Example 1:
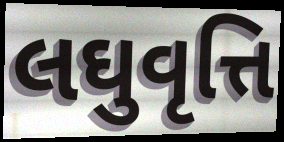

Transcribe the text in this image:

લઘુવૃત્તિ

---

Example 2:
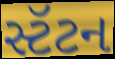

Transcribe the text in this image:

સ્ટૅટન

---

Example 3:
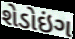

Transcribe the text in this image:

શેડોઇંગ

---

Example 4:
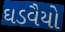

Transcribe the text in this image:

ઘડવૈયો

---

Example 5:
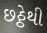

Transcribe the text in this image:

છઠ્ઠેથી